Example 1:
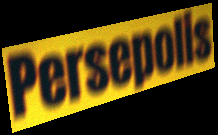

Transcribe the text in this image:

Persepolis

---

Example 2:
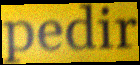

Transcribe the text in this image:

pedir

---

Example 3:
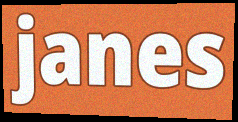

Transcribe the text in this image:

janes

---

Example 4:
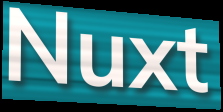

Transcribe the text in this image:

Nuxt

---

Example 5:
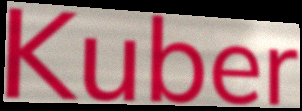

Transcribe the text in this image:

Kuber